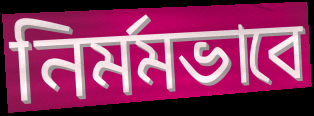
নির্মমভাবে